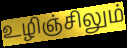
உழிஞ்சிலும்